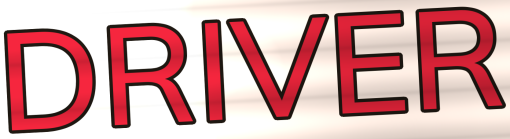
DRIVER